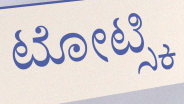
ಟೋಟ್ಸ್ಕಿ